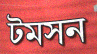
টমসন